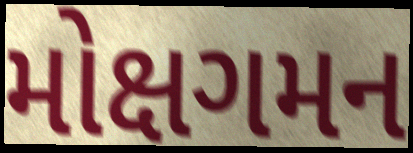
મોક્ષગમન